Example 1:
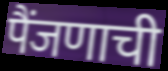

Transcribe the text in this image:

पैंजणाची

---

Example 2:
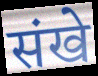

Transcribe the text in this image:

संखे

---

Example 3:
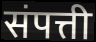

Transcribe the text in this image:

संपत्ती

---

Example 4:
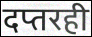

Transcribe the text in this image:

दप्तरही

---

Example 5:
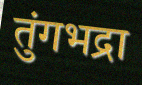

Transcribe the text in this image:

तुंगभद्रा